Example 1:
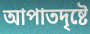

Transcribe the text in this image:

আপাতদৃষ্টে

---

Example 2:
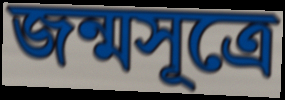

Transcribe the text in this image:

জন্মসূত্রে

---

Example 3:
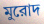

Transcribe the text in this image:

মুরোদ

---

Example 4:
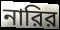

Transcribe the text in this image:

নারির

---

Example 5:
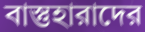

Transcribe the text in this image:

বাস্তুহারাদের